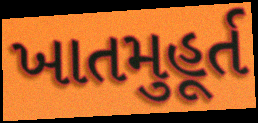
ખાતમુહૂર્ત